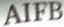
AIFB